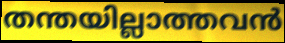
തന്തയില്ലാത്തവൻ